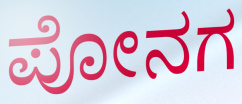
ಪೋನಗ